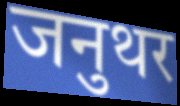
जनुथर